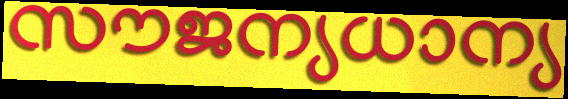
സൗജന്യധാന്യ